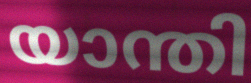
യാന്തി